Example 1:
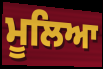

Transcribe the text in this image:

ਮੂਲਿਆ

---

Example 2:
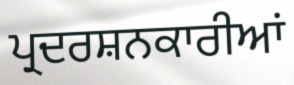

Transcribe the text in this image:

ਪ੍ਰਦਰਸ਼ਨਕਾਰੀਆਂ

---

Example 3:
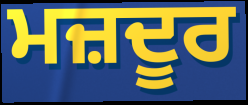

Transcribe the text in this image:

ਮਜ਼ਦੂਰ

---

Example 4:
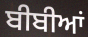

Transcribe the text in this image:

ਬੀਬੀਆਂ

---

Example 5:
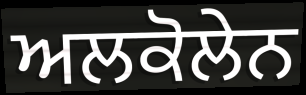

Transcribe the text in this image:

ਅਲਕੋਲੇਨ